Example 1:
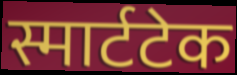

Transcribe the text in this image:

स्मार्टटेक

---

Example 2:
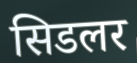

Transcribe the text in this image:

सिडलर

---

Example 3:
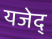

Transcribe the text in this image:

यजेद्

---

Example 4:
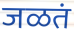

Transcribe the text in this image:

जळतं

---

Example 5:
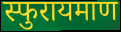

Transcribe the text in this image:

स्फुरायमाण